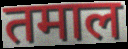
तमाल